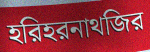
হরিহরনাথজির